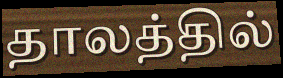
தாலத்தில்